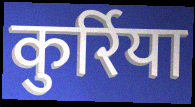
कुर्रिया